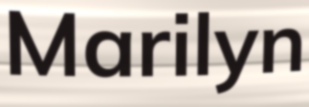
Marilyn